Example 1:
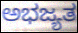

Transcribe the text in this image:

ಅಭಜ್ಯತ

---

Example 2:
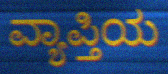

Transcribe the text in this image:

ವ್ಯಾಪ್ತಿಯ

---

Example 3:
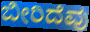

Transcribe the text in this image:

ಬೀರಿದೆವು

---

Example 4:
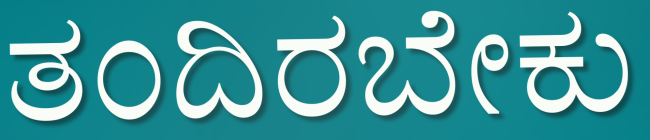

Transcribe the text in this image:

ತಂದಿರಬೇಕು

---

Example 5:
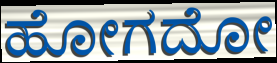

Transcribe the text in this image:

ಹೋಗದೋ